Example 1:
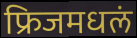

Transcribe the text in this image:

फ्रिजमधलं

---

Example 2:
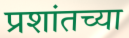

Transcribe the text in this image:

प्रशांतच्या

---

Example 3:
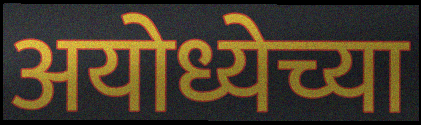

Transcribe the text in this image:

अयोध्येच्या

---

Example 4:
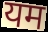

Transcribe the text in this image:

यम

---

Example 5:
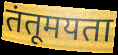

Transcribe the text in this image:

तंतूमयता